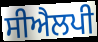
ਸੀਐਲਪੀ